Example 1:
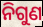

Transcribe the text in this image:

ନିଗୁଣ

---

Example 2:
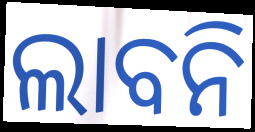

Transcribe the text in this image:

ଲାବନି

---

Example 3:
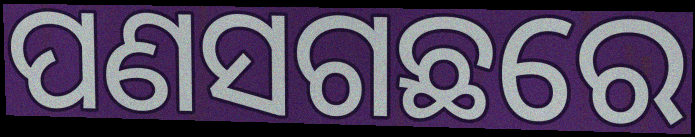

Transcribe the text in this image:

ପଣସଗଛରେ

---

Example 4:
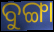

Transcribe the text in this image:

ବୁଙ୍ଗା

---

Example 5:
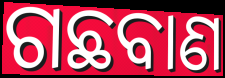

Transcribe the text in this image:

ଗଛବାଣ